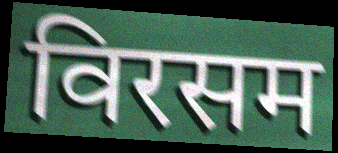
विरसम